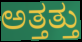
ಅತ್ತತ್ತು